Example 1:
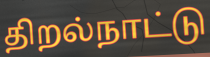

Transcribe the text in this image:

திறல்நாட்டு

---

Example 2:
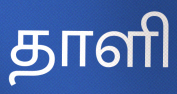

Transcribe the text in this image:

தாளி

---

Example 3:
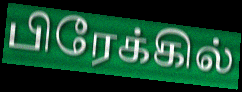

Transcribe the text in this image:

பிரேக்கில்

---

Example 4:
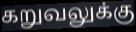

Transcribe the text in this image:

கறுவலுக்கு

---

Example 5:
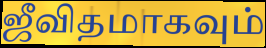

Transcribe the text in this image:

ஜீவிதமாகவும்